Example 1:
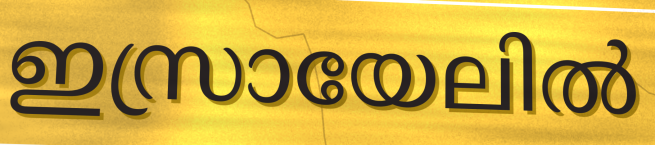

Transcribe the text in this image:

ഇസ്രായേലിൽ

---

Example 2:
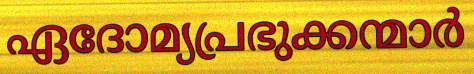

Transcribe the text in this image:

ഏദോമ്യപ്രഭുക്കന്മാർ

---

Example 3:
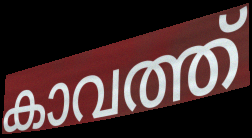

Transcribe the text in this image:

കാവത്ത്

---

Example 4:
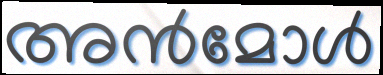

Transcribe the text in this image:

അൻമോൾ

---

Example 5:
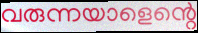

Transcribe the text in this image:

വരുന്നയാളെന്റെ